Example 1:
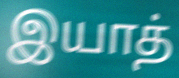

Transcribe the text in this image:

இயாத்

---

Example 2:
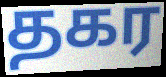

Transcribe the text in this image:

தகர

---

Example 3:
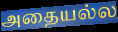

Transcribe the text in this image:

அதையல்ல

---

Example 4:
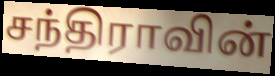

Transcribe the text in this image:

சந்திராவின்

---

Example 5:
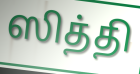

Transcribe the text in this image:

ஸித்தி